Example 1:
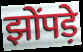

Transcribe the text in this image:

झोंपड़े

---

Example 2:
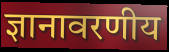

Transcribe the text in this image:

ज्ञानावरणीय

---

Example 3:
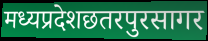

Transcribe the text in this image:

मध्यप्रदेशछतरपुरसागर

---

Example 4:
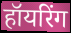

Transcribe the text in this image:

हॉयरिंग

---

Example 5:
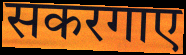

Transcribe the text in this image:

सकरगाए